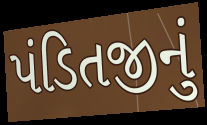
પંડિતજીનું